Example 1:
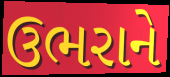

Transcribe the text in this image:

ઉભરાને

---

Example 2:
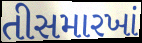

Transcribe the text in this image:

તીસમારખાં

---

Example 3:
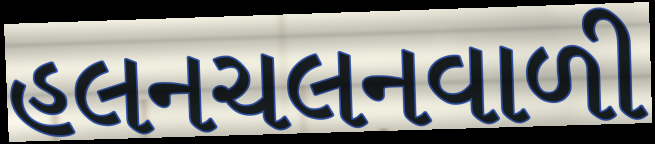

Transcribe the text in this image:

હલનચલનવાળી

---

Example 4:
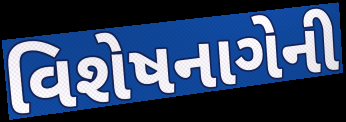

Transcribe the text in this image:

વિશેષનાગેની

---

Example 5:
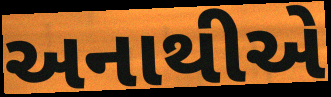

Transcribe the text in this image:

અનાથીએ